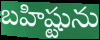
బహిష్టును